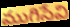
ముగిసేవి